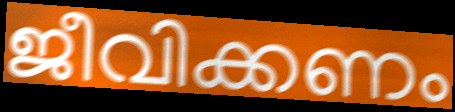
ജീവിക്കണം